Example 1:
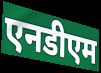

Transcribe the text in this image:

एनडीएम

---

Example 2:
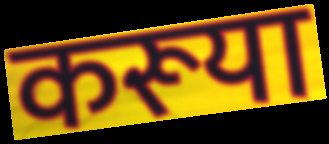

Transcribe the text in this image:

करूया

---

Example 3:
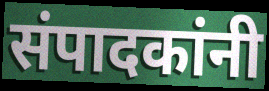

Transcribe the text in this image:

संपादकांनी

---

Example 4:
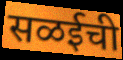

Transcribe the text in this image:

सळईची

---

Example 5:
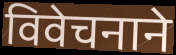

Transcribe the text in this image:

विवेचनाने